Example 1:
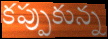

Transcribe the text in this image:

కప్పుకున్న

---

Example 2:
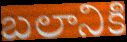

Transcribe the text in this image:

బలానికి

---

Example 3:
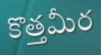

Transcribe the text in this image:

కొత్తమీర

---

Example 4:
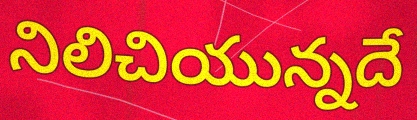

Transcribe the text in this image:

నిలిచియున్నదే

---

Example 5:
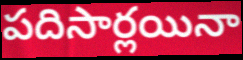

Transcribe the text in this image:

పదిసార్లయినా